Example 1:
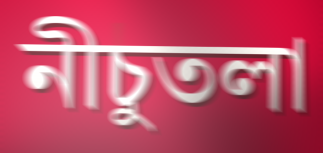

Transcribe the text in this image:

নীচুতলা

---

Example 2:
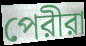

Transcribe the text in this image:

পেরীরা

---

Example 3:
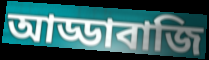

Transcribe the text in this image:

আড্ডাবাজি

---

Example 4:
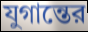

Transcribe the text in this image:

যুগান্তের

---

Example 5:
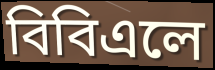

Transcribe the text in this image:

বিবিএলে